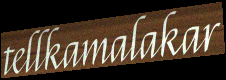
tellkamalakar